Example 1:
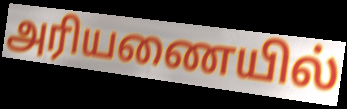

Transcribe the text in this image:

அரியணையில்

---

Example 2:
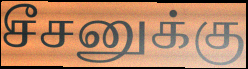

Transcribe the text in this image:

சீசனுக்கு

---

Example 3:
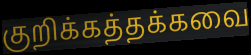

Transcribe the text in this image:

குறிக்கத்தக்கவை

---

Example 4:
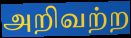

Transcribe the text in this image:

அறிவற்ற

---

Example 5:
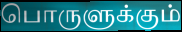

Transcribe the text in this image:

பொருளுக்கும்